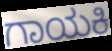
ಗಾಯಕಿ